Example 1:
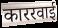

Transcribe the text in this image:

काररवाई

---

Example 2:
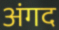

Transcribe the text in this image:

अंगद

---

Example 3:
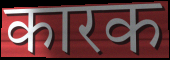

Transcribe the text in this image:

कारक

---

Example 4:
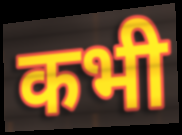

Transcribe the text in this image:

कभी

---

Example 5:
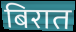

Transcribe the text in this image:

बिरात